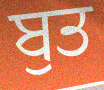
ਬੁਤ